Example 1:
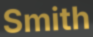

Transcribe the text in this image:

Smith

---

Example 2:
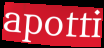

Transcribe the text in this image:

apotti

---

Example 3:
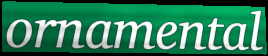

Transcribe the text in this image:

ornamental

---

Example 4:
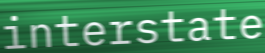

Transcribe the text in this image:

interstate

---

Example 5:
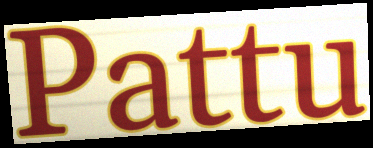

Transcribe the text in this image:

Pattu